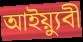
আইয়্যুবী